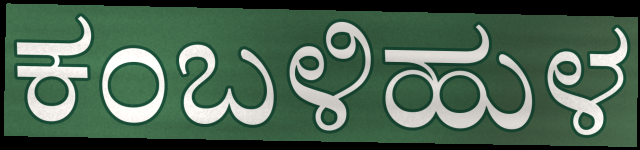
ಕಂಬಳಿಹುಳ